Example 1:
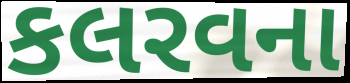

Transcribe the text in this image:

કલરવના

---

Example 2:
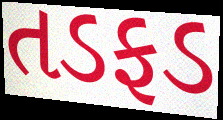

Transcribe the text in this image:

તડફડ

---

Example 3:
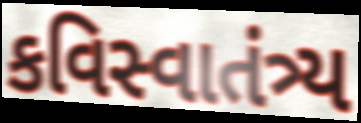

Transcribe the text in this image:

કવિસ્વાતંત્ર્ય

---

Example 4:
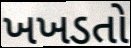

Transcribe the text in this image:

ખખડતો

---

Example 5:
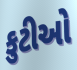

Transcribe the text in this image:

કુટીઓ